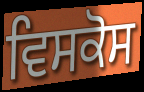
ਵਿਸਕੋਸ